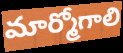
మార్మోగాలి